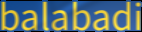
balabadi